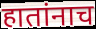
हातांनाच